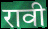
रावी